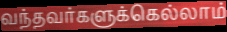
வந்தவர்களுக்கெல்லாம்